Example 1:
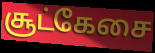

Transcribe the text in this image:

சூட்கேசை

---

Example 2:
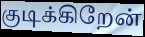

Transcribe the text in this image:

குடிக்கிறேன்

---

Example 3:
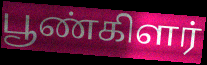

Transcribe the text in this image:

பூண்கிளர்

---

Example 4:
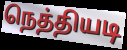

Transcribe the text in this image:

நெத்தியடி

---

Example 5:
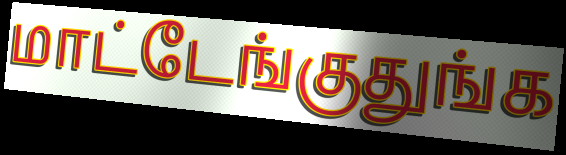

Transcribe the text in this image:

மாட்டேங்குதுங்க